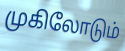
முகிலோடும்